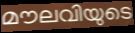
മൗലവിയുടെ